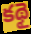
కథై